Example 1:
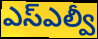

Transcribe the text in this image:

ఎస్ఎల్వీ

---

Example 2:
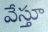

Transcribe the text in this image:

వేస్తూ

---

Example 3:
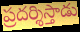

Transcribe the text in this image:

ప్రదర్శిస్తాడు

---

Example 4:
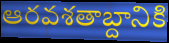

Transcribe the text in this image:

ఆరవశతాబ్దానికి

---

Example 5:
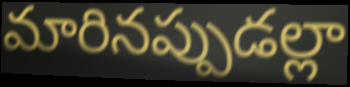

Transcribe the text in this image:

మారినప్పుడల్లా